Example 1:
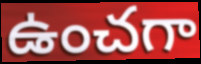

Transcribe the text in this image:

ఉంచగా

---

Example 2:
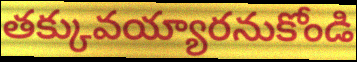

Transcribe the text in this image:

తక్కువయ్యారనుకోండి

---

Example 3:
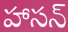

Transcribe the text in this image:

హాసన్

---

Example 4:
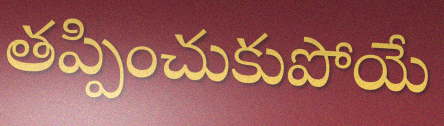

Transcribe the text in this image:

తప్పించుకుపోయే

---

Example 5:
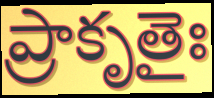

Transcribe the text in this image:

ప్రాకృతైః